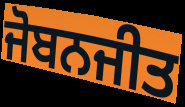
ਜੋਬਨਜੀਤ